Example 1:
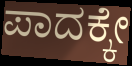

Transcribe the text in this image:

ಪಾದಕ್ಕೇ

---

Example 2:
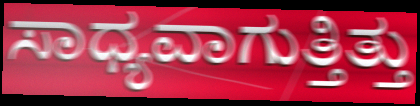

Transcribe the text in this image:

ಸಾಧ್ಯವಾಗುತ್ತಿತ್ತು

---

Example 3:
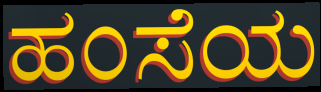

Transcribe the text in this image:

ಹಂಸೆಯ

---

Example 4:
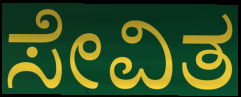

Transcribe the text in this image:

ಸೇವಿತ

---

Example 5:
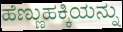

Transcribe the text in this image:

ಹೆಣ್ಣುಹಕ್ಕಿಯನ್ನು